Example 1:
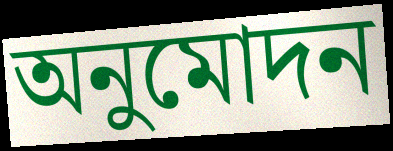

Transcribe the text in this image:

অনুমোদন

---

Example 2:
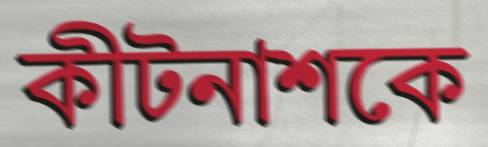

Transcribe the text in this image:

কীটনাশকে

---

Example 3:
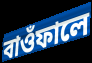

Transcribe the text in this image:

বাওঁফালে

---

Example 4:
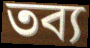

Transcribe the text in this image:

তব্য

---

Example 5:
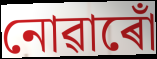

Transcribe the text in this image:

নোৱাৰোঁ